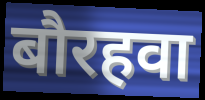
बौरहवा